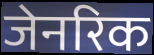
जेनरिक